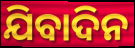
ଯିବାଦିନ